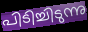
പിടിച്ചിടുന്നു